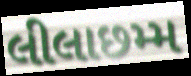
લીલાછમ્મ